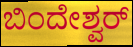
ಬಿಂದೇಶ್ವರ್